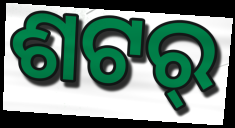
ଶଟର୍